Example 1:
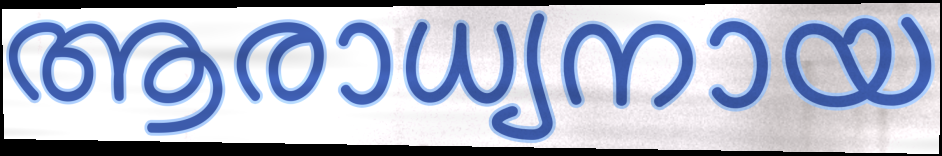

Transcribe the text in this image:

ആരാധ്യനായ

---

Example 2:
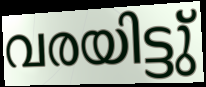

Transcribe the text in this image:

വരയിട്ടു്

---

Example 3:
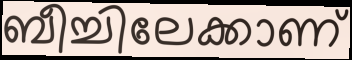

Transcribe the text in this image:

ബീച്ചിലേക്കാണ്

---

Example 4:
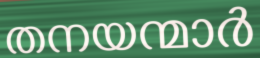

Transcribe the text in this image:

തനയന്മാർ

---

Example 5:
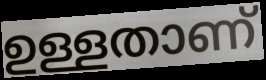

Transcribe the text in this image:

ഉള്ളതാണ്